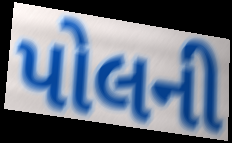
પોલની